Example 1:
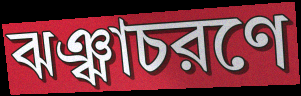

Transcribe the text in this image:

ঝঞ্ঝাচরণে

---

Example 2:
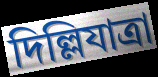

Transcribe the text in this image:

দিল্লিযাত্রা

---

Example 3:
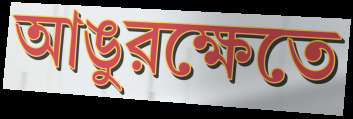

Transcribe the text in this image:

আঙুরক্ষেতে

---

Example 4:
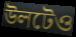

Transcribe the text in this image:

উলটেও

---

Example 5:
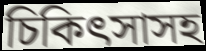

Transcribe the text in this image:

চিকিৎসাসহ